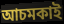
আচমকাই